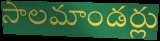
సాలమాండర్లు